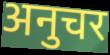
अनुचर